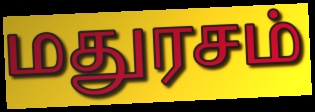
மதுரசம்